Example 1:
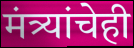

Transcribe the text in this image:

मंत्र्यांचेही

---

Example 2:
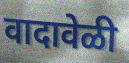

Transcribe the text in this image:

वादावेळी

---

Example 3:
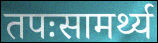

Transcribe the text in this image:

तपःसामर्थ्य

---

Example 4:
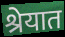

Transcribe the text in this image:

श्रेयात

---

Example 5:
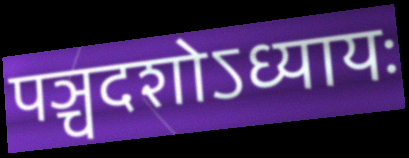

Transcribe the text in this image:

पञ्चदशोऽध्यायः